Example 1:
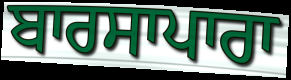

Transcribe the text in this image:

ਬਾਰਸਾਪਾਰਾ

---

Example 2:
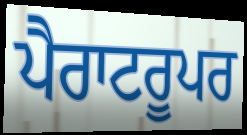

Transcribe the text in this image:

ਪੈਰਾਟਰੂਪਰ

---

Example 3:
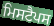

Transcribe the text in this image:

ਮਿਸਟੈਪਸ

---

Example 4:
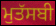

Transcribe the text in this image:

ਮੁਤੱਸਬੀ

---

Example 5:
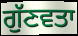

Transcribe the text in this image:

ਗੁੱਣਵਤਾ